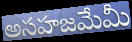
అసహజమేమీ